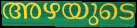
അഴയുടെ